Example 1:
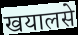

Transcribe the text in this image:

खयालसे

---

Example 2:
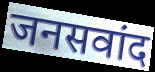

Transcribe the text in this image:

जनसवांद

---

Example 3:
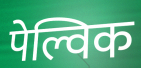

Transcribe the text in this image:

पेल्विक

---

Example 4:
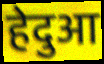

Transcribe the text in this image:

हेदुआ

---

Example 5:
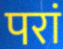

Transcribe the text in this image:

परां